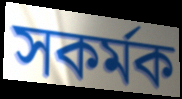
সকর্মক